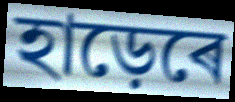
হাড়েৰে